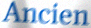
Ancien